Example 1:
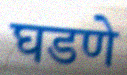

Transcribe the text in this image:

घडणे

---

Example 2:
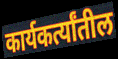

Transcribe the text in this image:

कार्यकर्त्यांतील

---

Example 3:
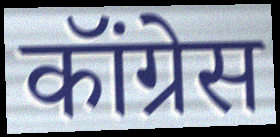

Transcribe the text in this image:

कॉंग्रेस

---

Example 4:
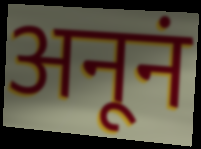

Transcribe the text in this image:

अनूनं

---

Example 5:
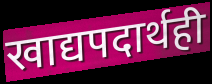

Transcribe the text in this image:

खाद्यपदार्थही